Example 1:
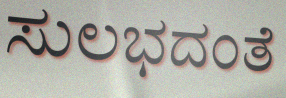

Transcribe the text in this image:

ಸುಲಭದಂತೆ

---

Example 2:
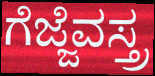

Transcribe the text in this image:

ಗೆಜ್ಜೆವಸ್ತ್ರ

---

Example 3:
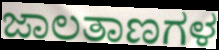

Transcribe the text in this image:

ಜಾಲತಾಣಗಳ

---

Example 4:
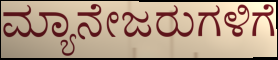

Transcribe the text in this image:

ಮ್ಯಾನೇಜರುಗಳಿಗೆ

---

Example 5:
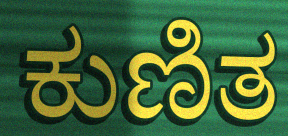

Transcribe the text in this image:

ಕುಣಿತ